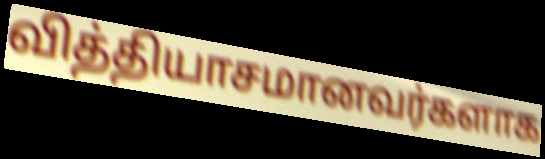
வித்தியாசமானவர்களாக